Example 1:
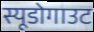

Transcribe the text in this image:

स्यूडोगाउट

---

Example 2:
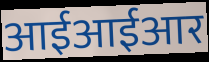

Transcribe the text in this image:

आईआईआर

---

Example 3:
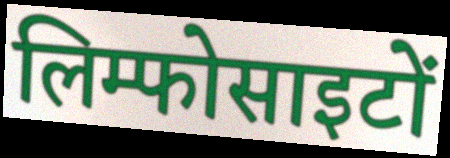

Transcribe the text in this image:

लिम्फोसाइटों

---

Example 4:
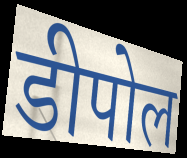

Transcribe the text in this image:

डीपोल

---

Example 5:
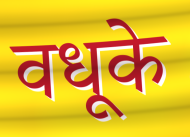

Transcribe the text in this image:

वधूके